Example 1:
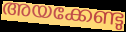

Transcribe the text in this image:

അയക്കേണ്ടു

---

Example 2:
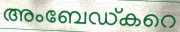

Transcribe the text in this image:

അംബേഡ്കറെ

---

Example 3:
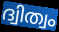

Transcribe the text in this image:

ദ്വിത്വം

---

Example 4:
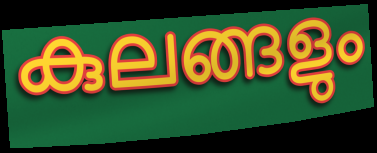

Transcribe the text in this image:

കുലങ്ങളും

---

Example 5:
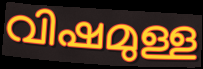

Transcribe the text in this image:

വിഷമുള്ള